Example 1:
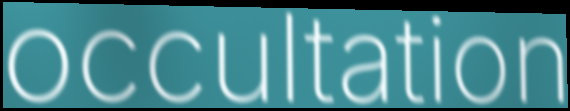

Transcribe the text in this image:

occultation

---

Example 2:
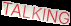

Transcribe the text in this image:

TALKING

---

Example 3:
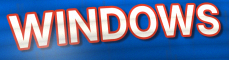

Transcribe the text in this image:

WINDOWS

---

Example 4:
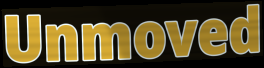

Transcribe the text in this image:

Unmoved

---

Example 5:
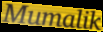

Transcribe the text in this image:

Mumalik